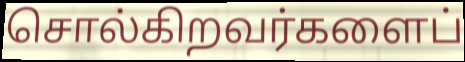
சொல்கிறவர்களைப்